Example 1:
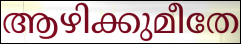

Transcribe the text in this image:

ആഴിക്കുമീതേ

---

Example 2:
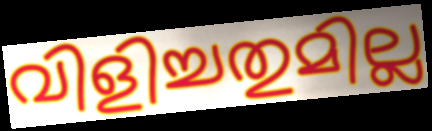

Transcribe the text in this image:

വിളിച്ചതുമില്ല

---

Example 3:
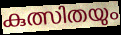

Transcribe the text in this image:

കുത്സിതയും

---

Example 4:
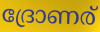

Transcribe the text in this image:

ദ്രോണര്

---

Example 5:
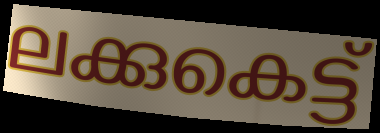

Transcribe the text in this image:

ലക്കുകെട്ട്